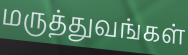
மருத்துவங்கள்